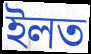
ইলত